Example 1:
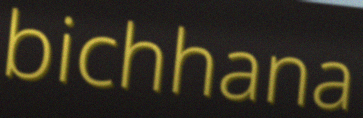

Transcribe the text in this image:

bichhana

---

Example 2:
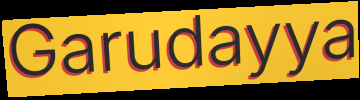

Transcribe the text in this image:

Garudayya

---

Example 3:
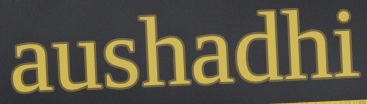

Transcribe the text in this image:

aushadhi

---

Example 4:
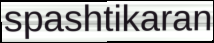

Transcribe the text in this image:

spashtikaran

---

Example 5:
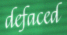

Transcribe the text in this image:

defaced